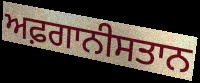
ਅਫ਼ਗਾਨੀਸਤਾਨ